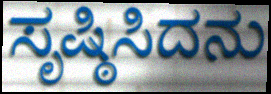
ಸೃಷ್ಠಿಸಿದನು